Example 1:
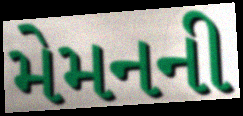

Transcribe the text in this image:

મેમનની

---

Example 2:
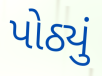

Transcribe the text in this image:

પોઠ્યું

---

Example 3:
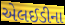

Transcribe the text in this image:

એલઈડીના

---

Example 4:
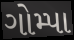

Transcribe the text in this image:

ગોમ્પા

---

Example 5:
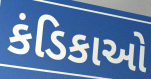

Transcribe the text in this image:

કંડિકાઓ